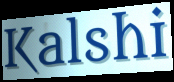
Kalshi